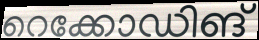
റെക്കോഡിങ്